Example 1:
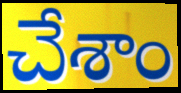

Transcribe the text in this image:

చేశాం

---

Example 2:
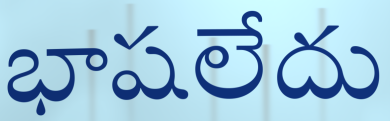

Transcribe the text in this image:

భాషలేదు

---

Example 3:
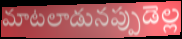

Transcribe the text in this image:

మాటలాడునప్పుడెల్ల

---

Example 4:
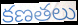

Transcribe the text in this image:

కణతలు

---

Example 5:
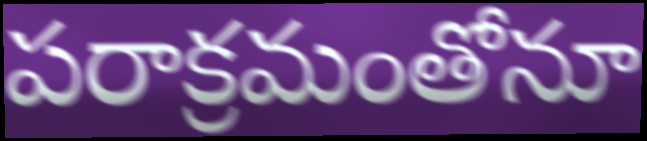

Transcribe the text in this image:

పరాక్రమంతోనూ